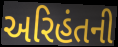
અરિહંતની